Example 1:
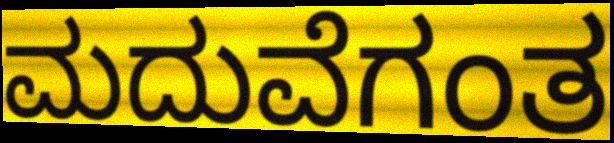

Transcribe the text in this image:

ಮದುವೆಗಂತ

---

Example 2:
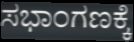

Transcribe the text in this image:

ಸಭಾಂಗಣಕ್ಕೆ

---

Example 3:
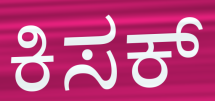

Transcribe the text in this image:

ಕಿಸಕ್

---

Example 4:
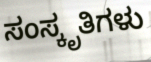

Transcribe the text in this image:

ಸಂಸ್ಕೃತಿಗಳು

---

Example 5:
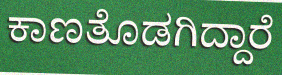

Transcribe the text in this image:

ಕಾಣತೊಡಗಿದ್ದಾರೆ